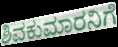
ಶಿವಕುಮಾರನಿಗೆ